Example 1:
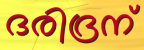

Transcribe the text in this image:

ദരിദ്രന്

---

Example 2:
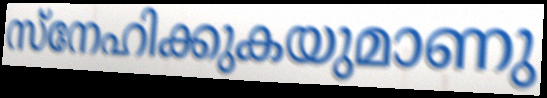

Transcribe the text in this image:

സ്നേഹിക്കുകയുമാണു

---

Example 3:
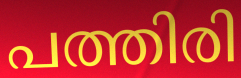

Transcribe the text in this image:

പത്തിരി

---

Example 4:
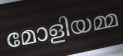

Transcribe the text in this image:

മോളിയമ്മ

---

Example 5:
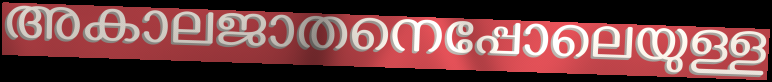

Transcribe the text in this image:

അകാലജാതനെപ്പോലെയുള്ള